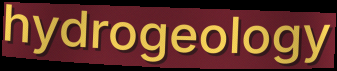
hydrogeology